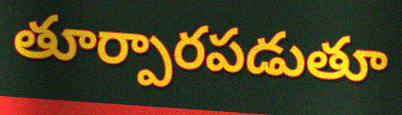
తూర్పారపడుతూ